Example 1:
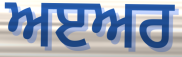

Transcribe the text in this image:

ਅੲਅਰ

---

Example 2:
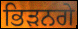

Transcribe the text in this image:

ਭਿੜਨਗੇ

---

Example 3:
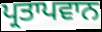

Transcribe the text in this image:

ਪ੍ਰਤਾਪਵਾਨ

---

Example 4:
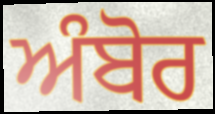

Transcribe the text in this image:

ਅੰਬੋਰ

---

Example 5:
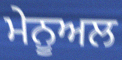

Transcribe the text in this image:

ਮੇਨੂਅਲ